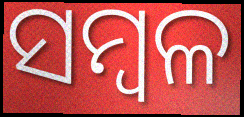
ସମ୍ବଳ